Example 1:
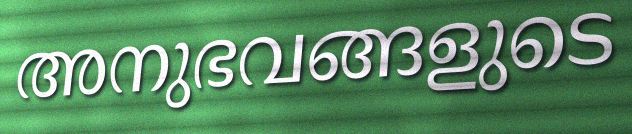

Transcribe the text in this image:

അനുഭവങ്ങളുടെ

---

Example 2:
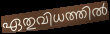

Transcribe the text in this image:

ഏതുവിധത്തിൽ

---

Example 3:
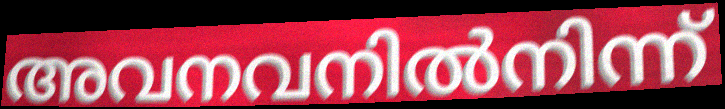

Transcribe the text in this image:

അവനവനിൽനിന്ന്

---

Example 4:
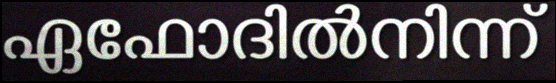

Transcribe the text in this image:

ഏഫോദിൽനിന്ന്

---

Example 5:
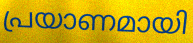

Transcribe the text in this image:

പ്രയാണമായി